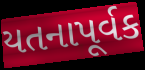
યતનાપૂર્વક